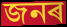
জনৰ